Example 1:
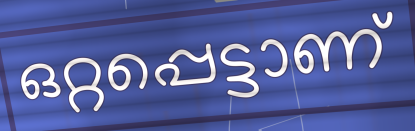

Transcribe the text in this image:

ഒറ്റപ്പെട്ടാണ്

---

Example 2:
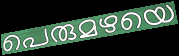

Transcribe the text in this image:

പെരുമഴയെ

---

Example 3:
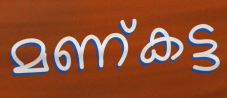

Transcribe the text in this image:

മണ്കട്ട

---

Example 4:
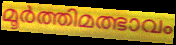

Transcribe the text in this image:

മൂർത്തിമത്ഭാവം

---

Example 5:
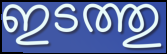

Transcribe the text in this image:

ഇടത്തു